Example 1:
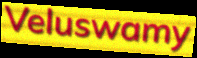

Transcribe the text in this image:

Veluswamy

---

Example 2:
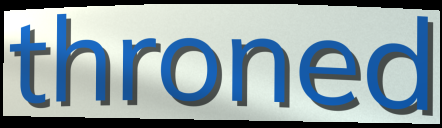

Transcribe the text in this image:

throned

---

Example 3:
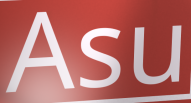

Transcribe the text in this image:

Asu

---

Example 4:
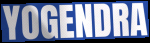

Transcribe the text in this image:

YOGENDRA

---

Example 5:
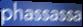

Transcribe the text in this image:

phassassa